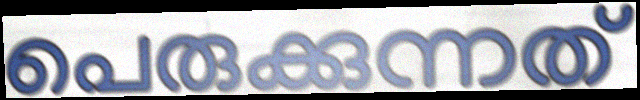
പെരുക്കുന്നത്